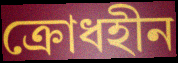
ক্রোধহীন